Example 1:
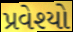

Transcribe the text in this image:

પ્રવેશ્યો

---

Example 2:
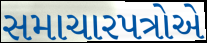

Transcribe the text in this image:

સમાચારપત્રોએ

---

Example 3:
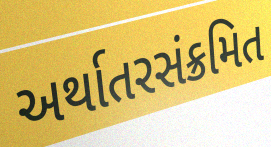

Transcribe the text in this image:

અર્થાતરસંક્રમિત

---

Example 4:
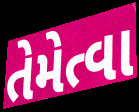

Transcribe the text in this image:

તેમેત્વા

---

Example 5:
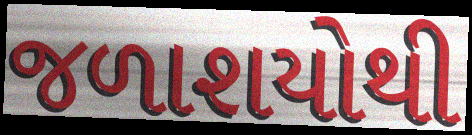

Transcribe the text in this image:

જળાશયોથી